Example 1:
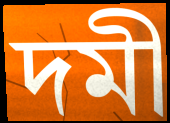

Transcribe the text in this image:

দমী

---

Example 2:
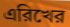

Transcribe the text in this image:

এরিখের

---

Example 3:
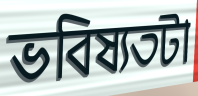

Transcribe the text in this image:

ভবিষ্যতটা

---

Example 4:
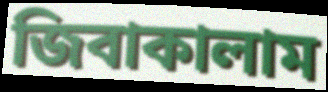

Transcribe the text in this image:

জিবাকালাম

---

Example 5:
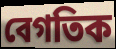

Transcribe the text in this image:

বেগতিক